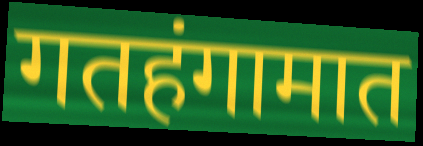
गतहंगामात